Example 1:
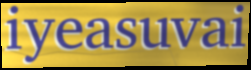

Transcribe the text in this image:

iyeasuvai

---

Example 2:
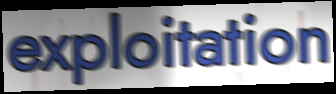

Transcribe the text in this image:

exploitation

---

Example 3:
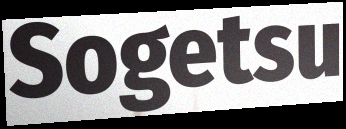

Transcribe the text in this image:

Sogetsu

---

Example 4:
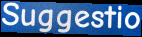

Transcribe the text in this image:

Suggestio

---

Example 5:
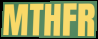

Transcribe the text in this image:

MTHFR